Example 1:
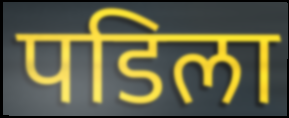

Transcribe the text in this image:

पडिला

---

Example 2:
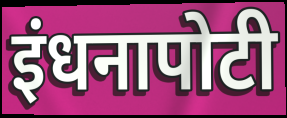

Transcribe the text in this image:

इंधनापोटी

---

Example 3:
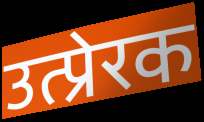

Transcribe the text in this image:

उत्प्रेरक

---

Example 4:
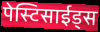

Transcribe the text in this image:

पेस्टिसाईड्स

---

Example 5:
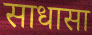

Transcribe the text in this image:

साधासा